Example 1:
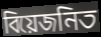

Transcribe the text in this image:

বিয়েজনিত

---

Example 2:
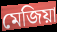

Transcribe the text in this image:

মেজিয়া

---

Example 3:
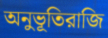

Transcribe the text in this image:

অনুভূতিরাজি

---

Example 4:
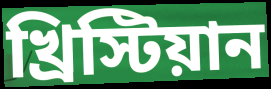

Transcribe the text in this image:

খ্রিস্টিয়ান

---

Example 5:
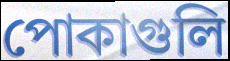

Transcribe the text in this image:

পোকাগুলি